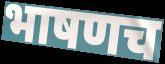
भाषणच